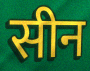
सीन